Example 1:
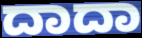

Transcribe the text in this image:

ದಾದಾ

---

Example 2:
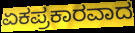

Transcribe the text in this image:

ಏಕಪ್ರಕಾರವಾದ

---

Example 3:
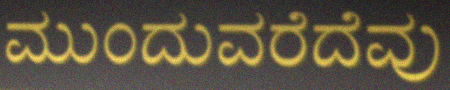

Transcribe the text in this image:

ಮುಂದುವರೆದೆವು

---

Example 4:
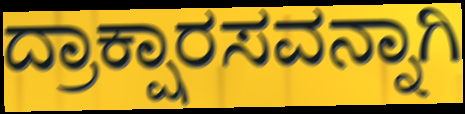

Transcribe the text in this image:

ದ್ರಾಕ್ಷಾರಸವನ್ನಾಗಿ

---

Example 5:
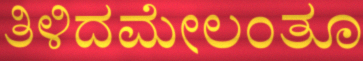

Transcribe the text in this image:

ತಿಳಿದಮೇಲಂತೂ